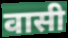
वासी